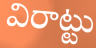
విరాట్టు